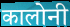
कालोनी